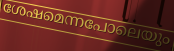
ശേഷമെന്നപോലെയും